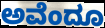
ಅವೆಂದೂ